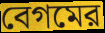
বেগমের